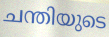
ചന്തിയുടെ